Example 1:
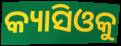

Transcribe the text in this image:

କ୍ୟାସିଓକୁ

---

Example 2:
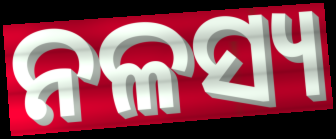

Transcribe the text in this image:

ନଳସ୍ୟ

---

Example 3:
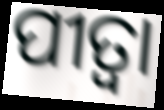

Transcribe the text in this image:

ପୀତ୍ବା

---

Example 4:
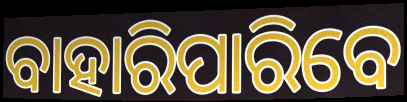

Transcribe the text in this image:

ବାହାରିପାରିବେ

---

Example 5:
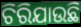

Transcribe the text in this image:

ଚିରିଯାଉଛି